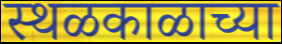
स्थळकाळाच्या